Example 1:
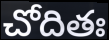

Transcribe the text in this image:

చోదితః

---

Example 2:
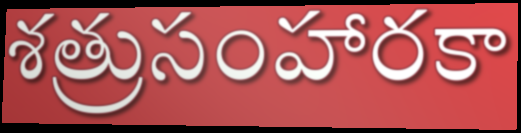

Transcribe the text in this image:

శత్రుసంహారకా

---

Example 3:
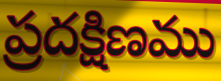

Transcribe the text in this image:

ప్రదక్షిణము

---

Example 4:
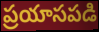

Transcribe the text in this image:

ప్రయాసపడి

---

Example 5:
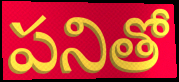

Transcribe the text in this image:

పనితో